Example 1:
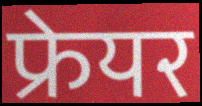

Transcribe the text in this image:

फ्रेयर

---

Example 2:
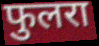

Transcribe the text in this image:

फुलरा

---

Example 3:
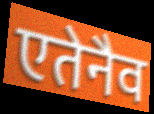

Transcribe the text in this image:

एतेनैव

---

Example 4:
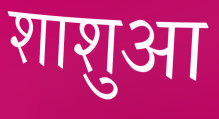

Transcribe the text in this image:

शाशुआ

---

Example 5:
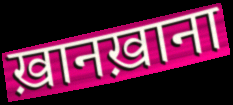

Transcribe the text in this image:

ख़ानख़ाना